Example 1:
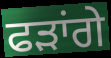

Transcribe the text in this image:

ਫੜਾਂਗੇ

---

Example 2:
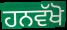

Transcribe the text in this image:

ਹਨਵੱਖੋ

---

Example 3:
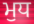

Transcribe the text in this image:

ਮੁਧ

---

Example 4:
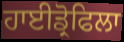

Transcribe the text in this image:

ਹਾਈਡ੍ਰੋਫਿਲਾ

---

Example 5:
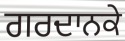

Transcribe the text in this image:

ਗਰਦਾਨਕੇ